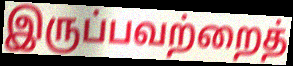
இருப்பவற்றைத்